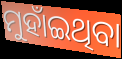
ମୁହାଁଇଥିବା